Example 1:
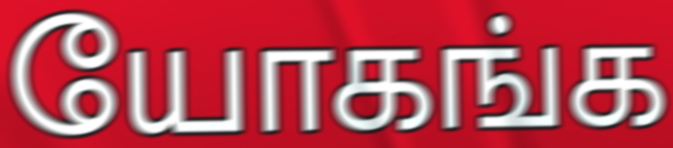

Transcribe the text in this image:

யோகங்க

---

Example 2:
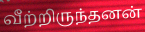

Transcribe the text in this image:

வீற்றிருந்தனன்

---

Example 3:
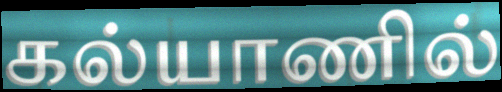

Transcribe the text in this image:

கல்யாணில்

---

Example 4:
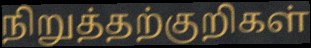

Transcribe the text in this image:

நிறுத்தற்குறிகள்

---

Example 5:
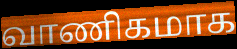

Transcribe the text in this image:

வாணிகமாக